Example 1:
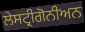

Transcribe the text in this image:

ਲੇਸਟ੍ਰੀਗੋਨੀਅਨ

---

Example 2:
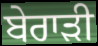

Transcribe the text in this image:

ਬੇਰਾੜੀ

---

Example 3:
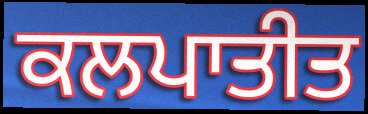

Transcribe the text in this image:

ਕਲਪਾਤੀਤ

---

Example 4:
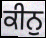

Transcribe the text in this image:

ਕੀਨੁ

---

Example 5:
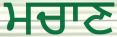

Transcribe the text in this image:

ਮਚਾਣ